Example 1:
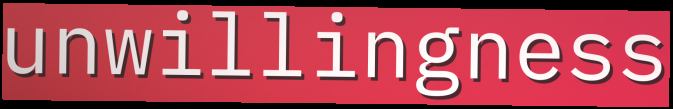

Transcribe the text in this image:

unwillingness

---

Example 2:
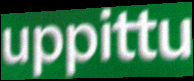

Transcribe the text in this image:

uppittu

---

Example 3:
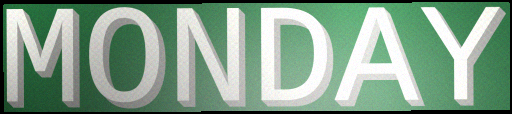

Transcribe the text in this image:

MONDAY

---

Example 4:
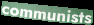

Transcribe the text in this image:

communists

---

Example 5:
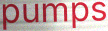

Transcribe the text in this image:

pumps